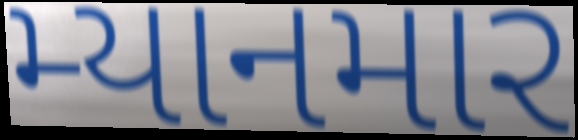
મ્યાનમાર